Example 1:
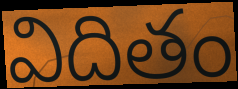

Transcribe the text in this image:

విదితం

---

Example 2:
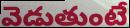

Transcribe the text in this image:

వెడుతుంటే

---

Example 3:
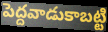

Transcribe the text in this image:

పెద్దవాడుకాబట్టి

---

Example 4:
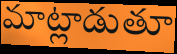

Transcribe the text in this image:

మాట్లాడుతూ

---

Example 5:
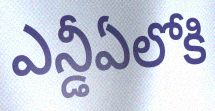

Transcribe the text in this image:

ఎన్డీఏలోకి